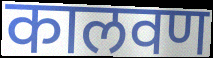
कालवण